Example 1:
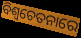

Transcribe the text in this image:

ବିଶ୍ୱଚେତନାରେ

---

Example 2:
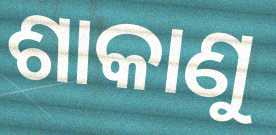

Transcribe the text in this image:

ଶାକାଣୁ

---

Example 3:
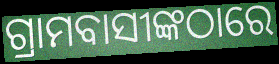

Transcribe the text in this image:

ଗ୍ରାମବାସୀଙ୍କଠାରେ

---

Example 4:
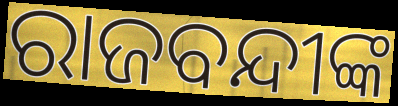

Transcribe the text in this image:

ରାଜବନ୍ଦୀଙ୍କ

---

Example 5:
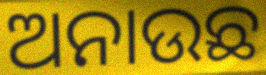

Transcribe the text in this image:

ଅନାଉଛ